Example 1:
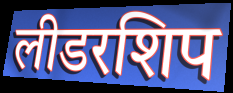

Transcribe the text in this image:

लीडरशिप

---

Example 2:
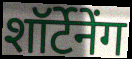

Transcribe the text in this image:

शॉर्टेनेंग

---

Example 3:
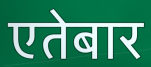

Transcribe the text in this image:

एतेबार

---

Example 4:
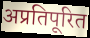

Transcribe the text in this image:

अप्रतिपूरित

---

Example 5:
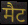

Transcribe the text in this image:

मैट